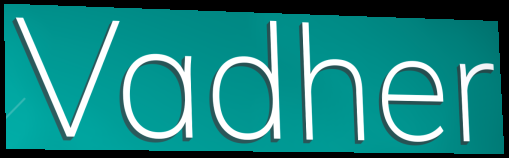
Vadher